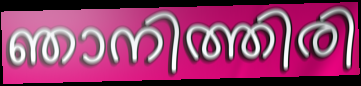
ഞാനിത്തിരി